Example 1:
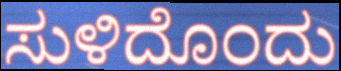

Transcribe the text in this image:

ಸುಳಿದೊಂದು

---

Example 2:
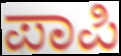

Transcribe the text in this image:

ಪಾಪಿ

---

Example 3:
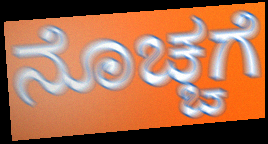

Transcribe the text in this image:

ನೊಚ್ಚಗೆ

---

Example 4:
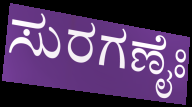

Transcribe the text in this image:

ಸುರಗಣೈಃ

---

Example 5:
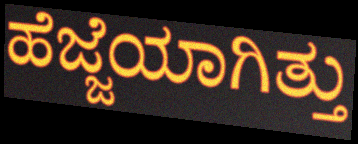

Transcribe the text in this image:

ಹೆಜ್ಜೆಯಾಗಿತ್ತು